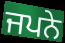
ਜਪਨੇ